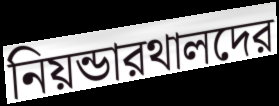
নিয়ন্ডারথালদের